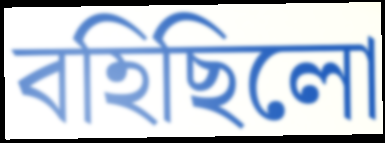
বহিছিলো